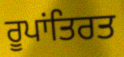
ਰੂਪਾਂਤਿਰਤ